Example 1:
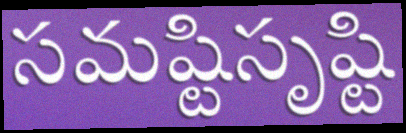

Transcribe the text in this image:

సమష్టిసృష్టి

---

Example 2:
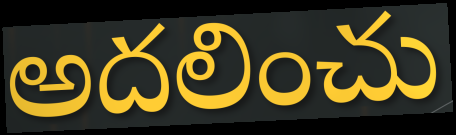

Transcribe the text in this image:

అదలించు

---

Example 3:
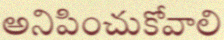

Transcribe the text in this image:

అనిపించుకోవాలి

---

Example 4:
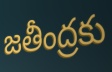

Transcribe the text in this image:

జతీంద్రకు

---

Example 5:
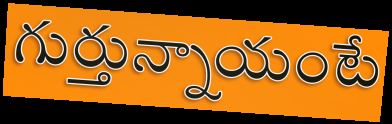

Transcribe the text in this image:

గుర్తున్నాయంటే